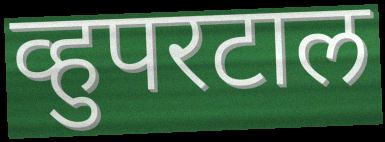
व्हुपरटाल